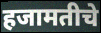
हजामतीचे